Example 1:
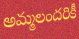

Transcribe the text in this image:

అమ్మలందరికీ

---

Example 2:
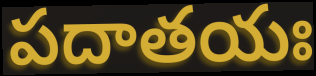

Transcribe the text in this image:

పదాతయః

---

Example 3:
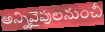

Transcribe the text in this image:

అన్నివైపులనుంచీ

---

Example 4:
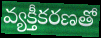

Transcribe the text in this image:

వ్యక్తీకరణతో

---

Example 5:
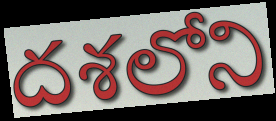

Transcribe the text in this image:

దశలోని